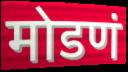
मोडणं